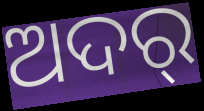
ଅଦର୍